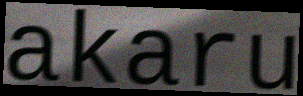
akaru